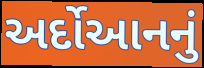
અર્દોઆનનું